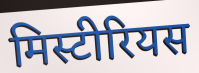
मिस्टीरियस